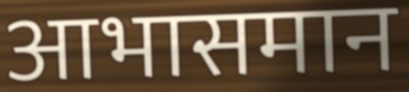
आभासमान